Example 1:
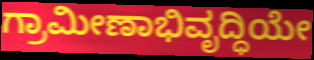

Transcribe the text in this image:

ಗ್ರಾಮೀಣಾಭಿವೃದ್ಧಿಯೇ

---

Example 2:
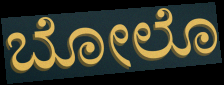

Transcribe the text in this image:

ಬೋಲೊ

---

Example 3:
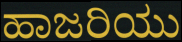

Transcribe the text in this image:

ಹಾಜರಿಯು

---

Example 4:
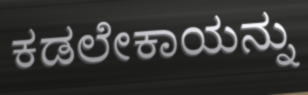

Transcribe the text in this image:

ಕಡಲೇಕಾಯನ್ನು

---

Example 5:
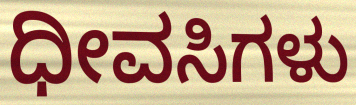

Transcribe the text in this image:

ಧೀವಸಿಗಳು